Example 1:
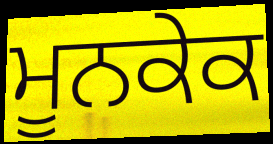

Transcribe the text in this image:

ਮੂਨਕੇਕ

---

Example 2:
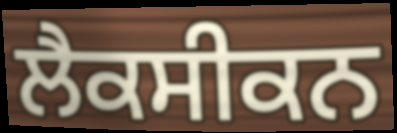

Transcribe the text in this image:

ਲੈਕਸੀਕਨ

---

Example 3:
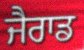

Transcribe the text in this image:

ਜੈਰਾਡ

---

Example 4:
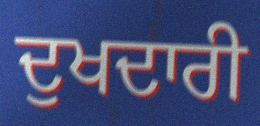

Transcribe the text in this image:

ਦੁਖਦਾਰੀ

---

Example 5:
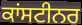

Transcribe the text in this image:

ਕਾਂਸਟੀਨਰ